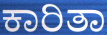
ಕಾರಿತಾ